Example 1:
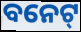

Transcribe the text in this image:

ବନେଟ୍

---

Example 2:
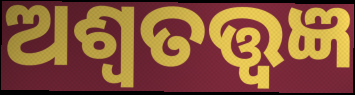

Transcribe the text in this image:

ଅଶ୍ୱତତ୍ତ୍ୱଜ୍ଞ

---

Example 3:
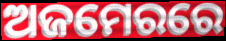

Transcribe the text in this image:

ଅଜମେରରେ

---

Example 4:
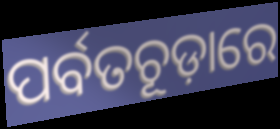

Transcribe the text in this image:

ପର୍ବତଚୂଡ଼ାରେ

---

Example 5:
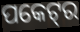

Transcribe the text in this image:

ପକେଟ୍‌ର